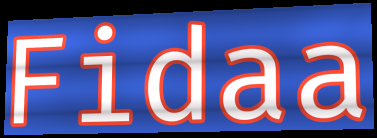
Fidaa